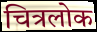
चित्रलोक